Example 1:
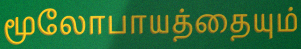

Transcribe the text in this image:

மூலோபாயத்தையும்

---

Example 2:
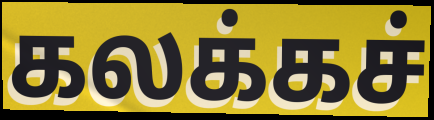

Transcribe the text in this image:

கலக்கச்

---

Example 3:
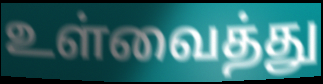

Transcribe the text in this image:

உள்வைத்து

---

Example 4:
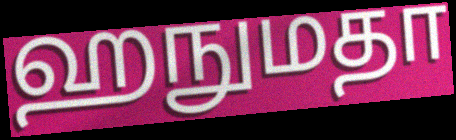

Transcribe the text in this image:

ஹநுமதா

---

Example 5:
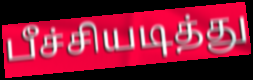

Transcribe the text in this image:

பீச்சியடித்து